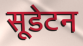
सूडेटन